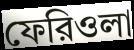
ফেরিওলা